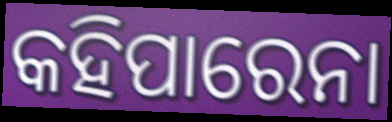
କହିପାରେନା